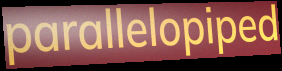
parallelopiped